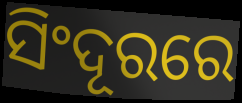
ସିଂଦୂରରେ